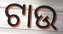
ଟାଉ